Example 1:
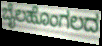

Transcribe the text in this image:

ಬೈಲಹೊಂಗಲದ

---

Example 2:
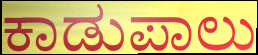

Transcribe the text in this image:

ಕಾಡುಪಾಲು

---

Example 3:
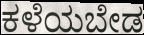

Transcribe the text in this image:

ಕಳೆಯಬೇಡ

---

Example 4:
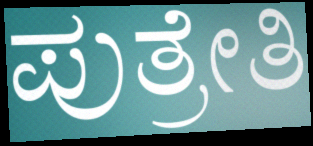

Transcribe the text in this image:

ಪುತ್ರೇತಿ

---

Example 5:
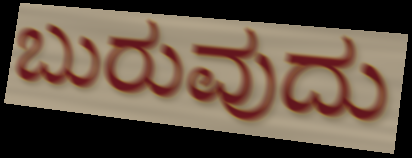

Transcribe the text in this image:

ಬುರುವುದು